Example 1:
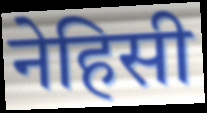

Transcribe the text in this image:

नेहिसी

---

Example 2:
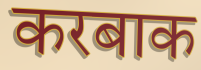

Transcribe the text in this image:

करबाक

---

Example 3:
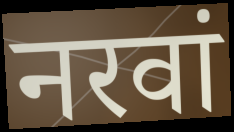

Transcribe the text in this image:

नरवां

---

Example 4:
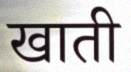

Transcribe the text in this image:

खाती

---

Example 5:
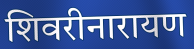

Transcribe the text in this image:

शिवरीनारायण